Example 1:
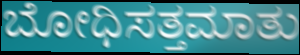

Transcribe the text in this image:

ಬೋಧಿಸತ್ತಮಾತು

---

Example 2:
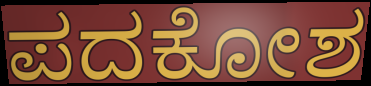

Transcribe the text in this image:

ಪದಕೋಶ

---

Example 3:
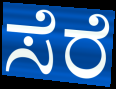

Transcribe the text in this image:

ಸೆರೆ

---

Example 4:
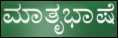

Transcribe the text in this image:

ಮಾತೃಭಾಷೆ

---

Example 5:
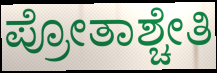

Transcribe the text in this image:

ಪ್ರೋತಾಶ್ಚೇತಿ